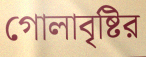
গোলাবৃষ্টির